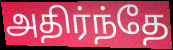
அதிர்ந்தே